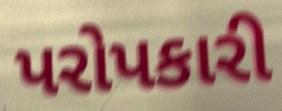
પરોપકારી